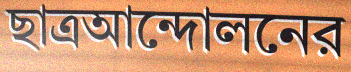
ছাত্রআন্দোলনের